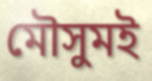
মৌসুমই